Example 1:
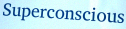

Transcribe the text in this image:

Superconscious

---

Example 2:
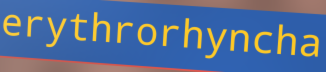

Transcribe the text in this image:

erythrorhyncha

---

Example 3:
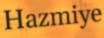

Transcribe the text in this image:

Hazmiye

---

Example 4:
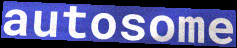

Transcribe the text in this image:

autosome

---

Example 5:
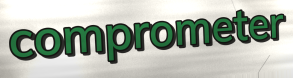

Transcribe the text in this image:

comprometer